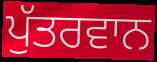
ਪੁੱਤਰਵਾਨ